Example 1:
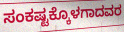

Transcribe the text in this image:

ಸಂಕಷ್ಟಕ್ಕೊಳಗಾದವರ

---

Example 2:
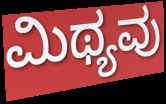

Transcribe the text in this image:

ಮಿಥ್ಯವು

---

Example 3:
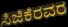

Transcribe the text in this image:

ಸಿಜಿಕೆರವರ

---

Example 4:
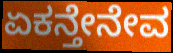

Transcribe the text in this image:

ಏಕನ್ತೇನೇವ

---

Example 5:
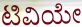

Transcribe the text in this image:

ಟಿವಿಯೇ